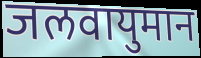
जलवायुमान